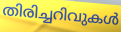
തിരിച്ചറിവുകൾ